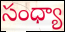
సంధ్యా